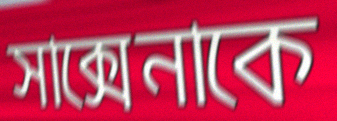
সাক্সেনাকে